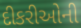
દીકરીઓની